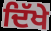
ਦਿੱਖੇ